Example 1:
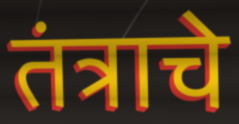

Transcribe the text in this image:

तंत्राचे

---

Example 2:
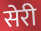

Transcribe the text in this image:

सेरी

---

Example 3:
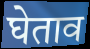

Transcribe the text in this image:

घेताव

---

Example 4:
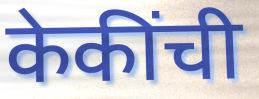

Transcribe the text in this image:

केकींची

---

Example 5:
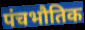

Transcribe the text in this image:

पंचभौतिक